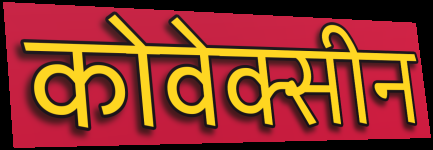
कोवेक्सीन